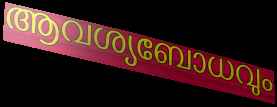
ആവശ്യബോധവും